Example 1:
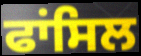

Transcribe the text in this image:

ਫਾਂਸਿਲ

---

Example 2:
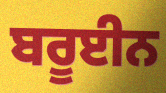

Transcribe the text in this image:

ਬਰੂਈਨ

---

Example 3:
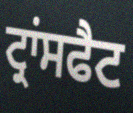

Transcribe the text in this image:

ਟ੍ਰਾਂਸਫੈਟ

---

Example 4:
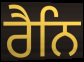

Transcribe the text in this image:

ਰੈਨਿ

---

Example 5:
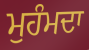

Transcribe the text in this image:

ਮੁਹੰਮਦਾ